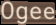
Ogee